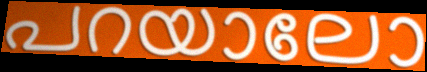
പറയാലോ